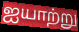
ஐயாற்று